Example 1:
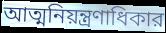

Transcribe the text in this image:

আত্মনিয়ন্ত্রণাধিকার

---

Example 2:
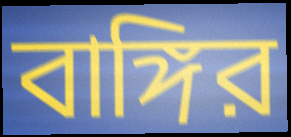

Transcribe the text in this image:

বাঙ্গির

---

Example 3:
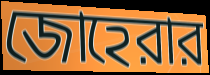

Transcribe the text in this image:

জোহেরার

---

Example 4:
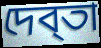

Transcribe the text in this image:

দেব্‌তা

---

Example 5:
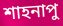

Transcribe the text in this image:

শাহনাপু